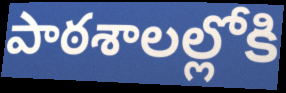
పాఠశాలల్లోకి